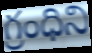
గ్రంధిని